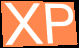
XP